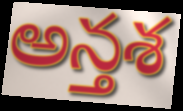
అన్తశ